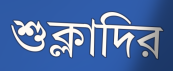
শুক্লাদির